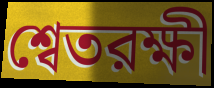
শ্বেতরক্ষী